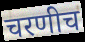
चरणीच